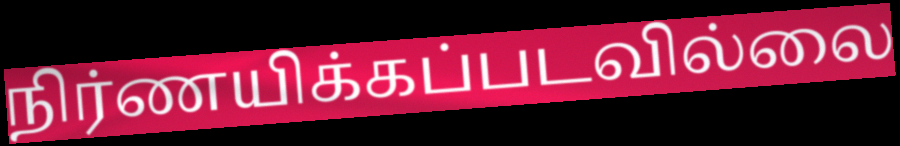
நிர்ணயிக்கப்படவில்லை